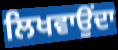
ਲਿਖਵਾਉਂਦਾ